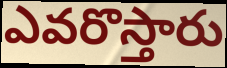
ఎవరొస్తారు